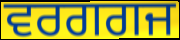
ਵਰਗਗਜ